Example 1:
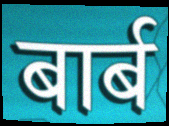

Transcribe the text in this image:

बार्ब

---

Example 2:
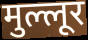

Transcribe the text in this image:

मुल्लूर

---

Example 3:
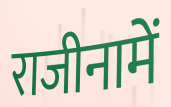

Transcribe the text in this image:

राजीनामें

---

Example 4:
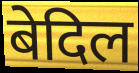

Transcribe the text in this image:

बेदिल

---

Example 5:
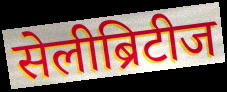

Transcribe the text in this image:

सेलीब्रिटीज